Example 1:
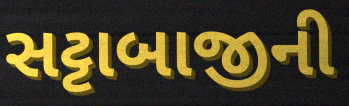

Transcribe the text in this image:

સટ્ટાબાજીની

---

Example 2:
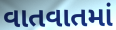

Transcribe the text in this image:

વાતવાતમાં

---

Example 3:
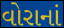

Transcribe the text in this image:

વોરાનાં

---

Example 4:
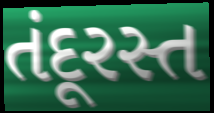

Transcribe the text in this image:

તંદૂરસ્ત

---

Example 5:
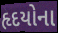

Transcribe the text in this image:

હૃદયોના